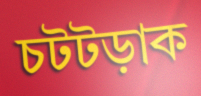
চটটড়াক